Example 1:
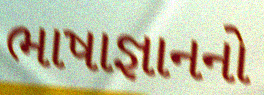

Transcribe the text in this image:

ભાષાજ્ઞાનનો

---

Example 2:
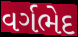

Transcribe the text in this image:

વર્ગભેદ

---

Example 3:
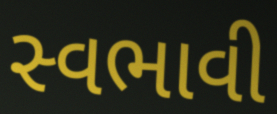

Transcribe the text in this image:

સ્વભાવી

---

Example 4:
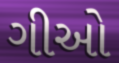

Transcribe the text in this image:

ગીઓ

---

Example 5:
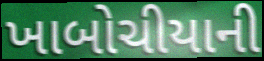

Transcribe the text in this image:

ખાબોચીયાની